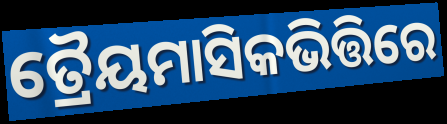
ତ୍ରୈୟମାସିକଭିତ୍ତିରେ